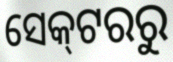
ସେକ୍‌ଟରରୁ